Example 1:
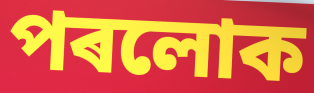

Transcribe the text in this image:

পৰলোক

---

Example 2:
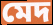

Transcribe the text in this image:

মেদ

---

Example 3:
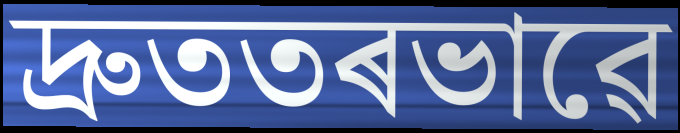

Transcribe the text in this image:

দ্ৰুততৰভাৱে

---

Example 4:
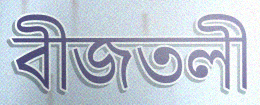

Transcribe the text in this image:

বীজতলী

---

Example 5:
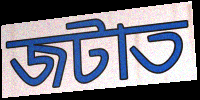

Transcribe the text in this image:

জটাত